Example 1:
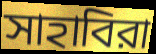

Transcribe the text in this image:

সাহাবিরা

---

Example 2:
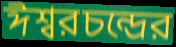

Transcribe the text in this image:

ঈশ্বরচন্দ্রের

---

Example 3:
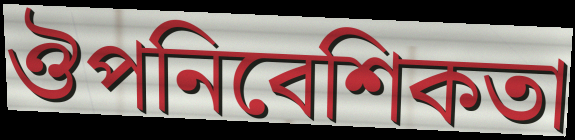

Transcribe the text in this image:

ঔপনিবেশিকতা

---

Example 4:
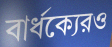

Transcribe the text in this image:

বার্ধক্যেরও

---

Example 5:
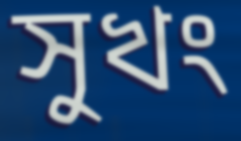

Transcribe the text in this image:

সুখং